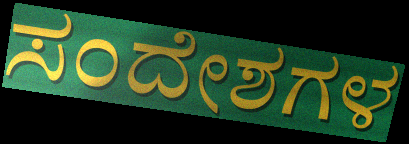
ಸಂದೇಶಗಳ